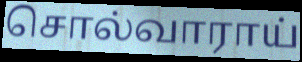
சொல்வாராய்